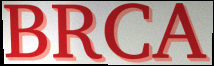
BRCA